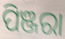
ପିଞ୍ଜରା